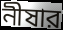
নীষার